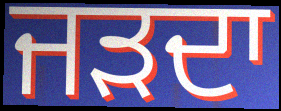
ਜੜਦਾ